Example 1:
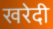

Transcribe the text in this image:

खरेदी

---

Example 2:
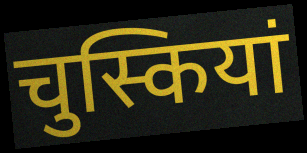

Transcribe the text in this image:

चुस्कियां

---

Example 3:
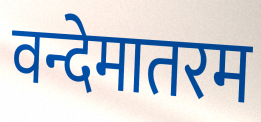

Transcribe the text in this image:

वन्देमातरम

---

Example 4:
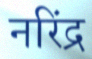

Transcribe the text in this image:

नरिंद्र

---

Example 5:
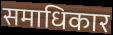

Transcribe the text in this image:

समाधिकार